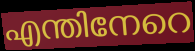
എന്തിനേറെ